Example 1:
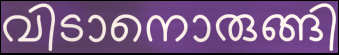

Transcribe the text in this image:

വിടാനൊരുങ്ങി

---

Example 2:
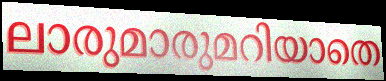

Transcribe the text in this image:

ലാരുമാരുമറിയാതെ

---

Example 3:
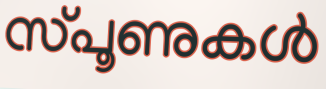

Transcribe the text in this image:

സ്പൂണുകൾ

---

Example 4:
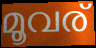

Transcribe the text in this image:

മൂവര്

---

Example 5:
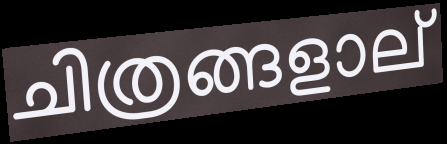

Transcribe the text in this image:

ചിത്രങ്ങളാല്